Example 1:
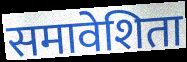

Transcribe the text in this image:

समावेशिता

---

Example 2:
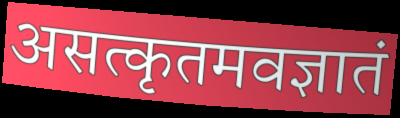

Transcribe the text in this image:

असत्कृतमवज्ञातं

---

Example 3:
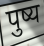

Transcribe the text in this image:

पुष्य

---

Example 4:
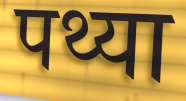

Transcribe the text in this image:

पथ्या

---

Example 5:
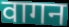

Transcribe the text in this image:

वागन